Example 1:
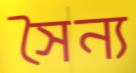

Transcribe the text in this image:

সৈন্য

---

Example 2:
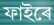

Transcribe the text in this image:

ফাইৰে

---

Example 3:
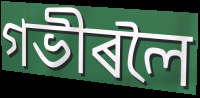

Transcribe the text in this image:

গভীৰলৈ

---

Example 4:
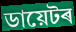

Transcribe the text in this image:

ডায়েটৰ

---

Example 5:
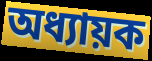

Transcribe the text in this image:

অধ্যায়ক